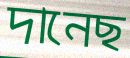
দানেছ